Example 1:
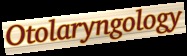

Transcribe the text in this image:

Otolaryngology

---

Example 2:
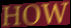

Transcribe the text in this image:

HOW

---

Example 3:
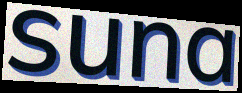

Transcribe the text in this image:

suna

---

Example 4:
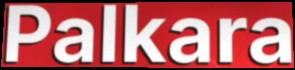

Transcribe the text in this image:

Palkara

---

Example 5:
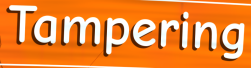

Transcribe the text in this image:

Tampering